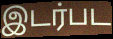
இடர்பட